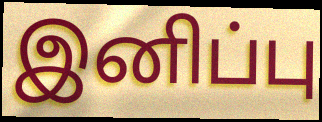
இனிப்பு